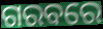
ଗରବରେ